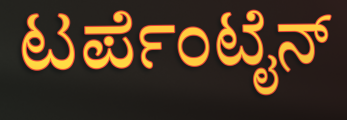
ಟರ್ಪೆಂಟೈನ್